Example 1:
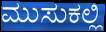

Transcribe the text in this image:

ಮುಸುಕಲ್ಲಿ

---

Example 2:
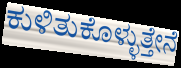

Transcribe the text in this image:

ಕುಳಿತುಕೊಳ್ಳುತ್ತೇನೆ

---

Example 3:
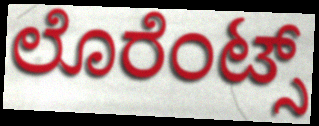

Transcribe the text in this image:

ಲೊರೆಂಟ್ಸ್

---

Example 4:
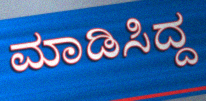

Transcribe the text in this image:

ಮಾಡಿಸಿದ್ದ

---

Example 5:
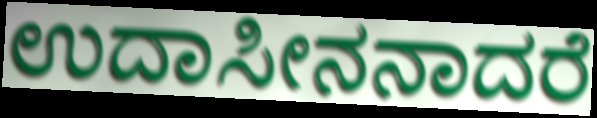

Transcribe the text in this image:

ಉದಾಸೀನನಾದರೆ